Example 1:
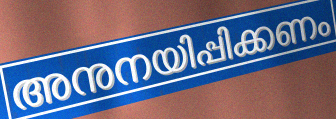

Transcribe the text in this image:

അനുനയിപ്പിക്കണം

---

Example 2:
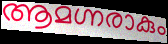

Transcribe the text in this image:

ആമഗ്നരാകും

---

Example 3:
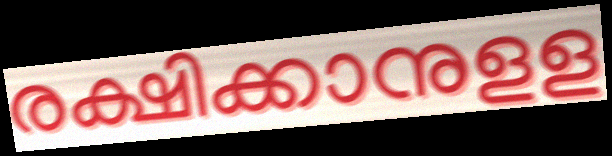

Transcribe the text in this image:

രക്ഷിക്കാനുളള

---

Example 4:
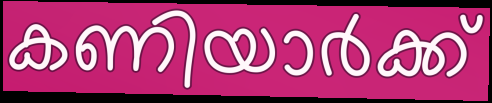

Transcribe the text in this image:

കണിയാർക്ക്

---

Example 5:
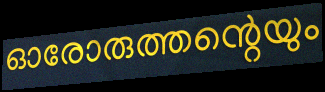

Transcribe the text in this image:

ഓരോരുത്തന്റെയും